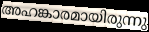
അഹങ്കാരമായിരുന്നു